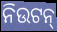
ନିଉଟନ୍